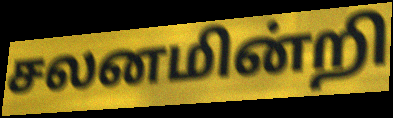
சலனமின்றி